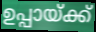
ഉപ്പായ്ക്ക്